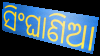
ସିଂଘାଣିଆ